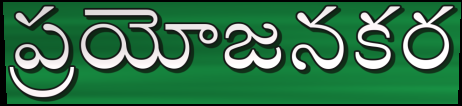
ప్రయోజనకర